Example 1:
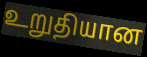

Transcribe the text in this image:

உறுதியான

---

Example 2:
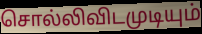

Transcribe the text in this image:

சொல்லிவிடமுடியும்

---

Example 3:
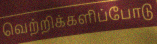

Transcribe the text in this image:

வெற்றிக்களிப்போடு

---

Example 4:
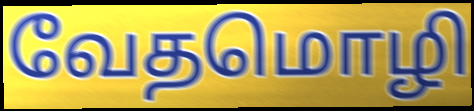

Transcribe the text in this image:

வேதமொழி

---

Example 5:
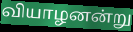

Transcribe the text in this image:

வியாழனன்று